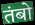
तंबो